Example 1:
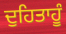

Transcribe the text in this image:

ਦੁਹਿਤਾਹੂੰ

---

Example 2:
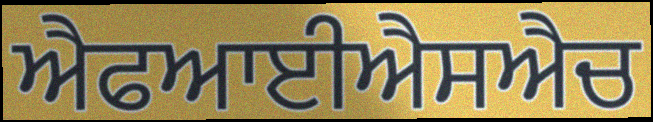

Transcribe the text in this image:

ਐਫਆਈਐਸਐਚ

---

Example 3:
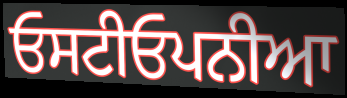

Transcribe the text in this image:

ਓਸਟੀਓਪਨੀਆ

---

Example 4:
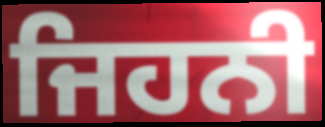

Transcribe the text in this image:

ਜਿਹਨੀ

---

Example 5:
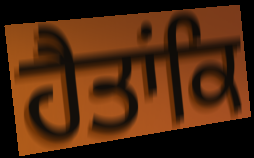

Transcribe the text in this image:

ਹੈਤਾਂਕਿ